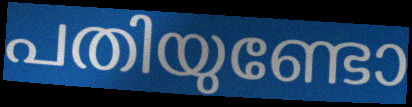
പതിയുണ്ടോ